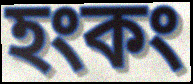
হংকং